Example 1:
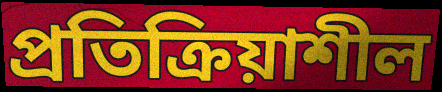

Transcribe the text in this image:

প্রতিক্রিয়াশীল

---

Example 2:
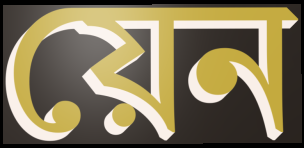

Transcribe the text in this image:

য়েন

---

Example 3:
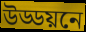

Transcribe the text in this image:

উড্ডয়নে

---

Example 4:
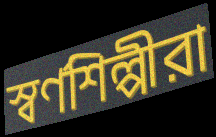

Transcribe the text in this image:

স্বর্ণশিল্পীরা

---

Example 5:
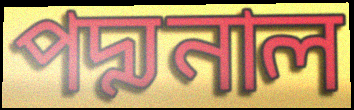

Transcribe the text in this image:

পদ্মনাল